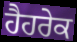
ਹੈਹਰੇਕ